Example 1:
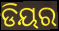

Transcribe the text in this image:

ଡିୟର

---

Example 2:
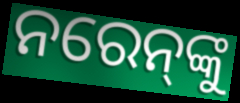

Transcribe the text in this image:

ନରେନ୍‍ଙ୍କୁ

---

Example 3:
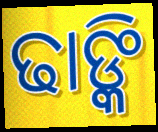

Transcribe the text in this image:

ଢାଙ୍କି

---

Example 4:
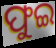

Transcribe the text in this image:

ଫୁଇ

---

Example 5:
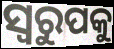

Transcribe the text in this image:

ସ୍ଵରୁପକୁ